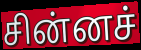
சின்னச்